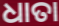
ଧାତା